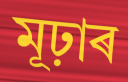
মূঢ়াৰ